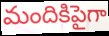
మందికిపైగా